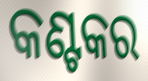
କଣ୍ଟକର